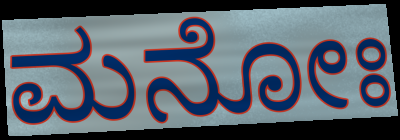
ಮನೋಃ